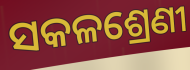
ସକଳଶ୍ରେଣୀ